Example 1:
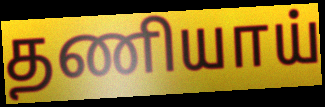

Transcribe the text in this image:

தணியாய்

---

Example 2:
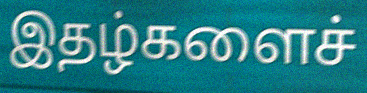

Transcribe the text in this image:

இதழ்களைச்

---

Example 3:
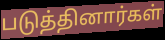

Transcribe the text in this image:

படுத்தினார்கள்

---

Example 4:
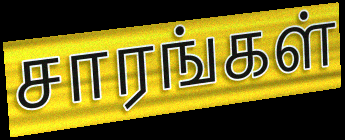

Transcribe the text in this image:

சாரங்கள்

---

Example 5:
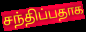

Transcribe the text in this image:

சந்திப்பதாக